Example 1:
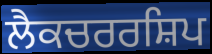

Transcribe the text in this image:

ਲੈਕਚਰਰਸ਼ਿਪ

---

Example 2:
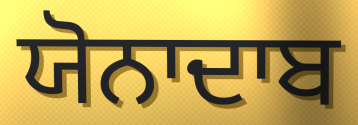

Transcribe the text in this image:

ਯੋਨਾਦਾਬ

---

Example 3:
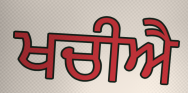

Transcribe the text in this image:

ਖਚੀਐ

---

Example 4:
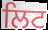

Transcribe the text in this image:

ਲਿਟ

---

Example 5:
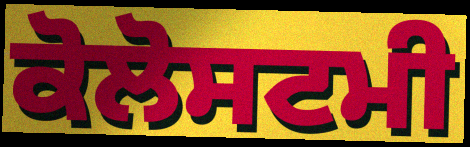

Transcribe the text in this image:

ਕੋਲੋਸਟਮੀ